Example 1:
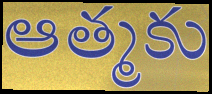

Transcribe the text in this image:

ఆత్మకు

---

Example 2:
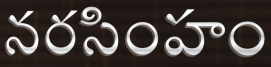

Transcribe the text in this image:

నరసింహం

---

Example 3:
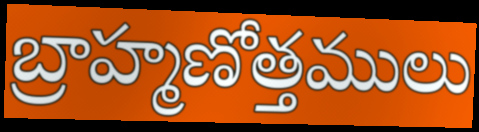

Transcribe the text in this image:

బ్రాహ్మణోత్తములు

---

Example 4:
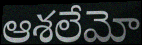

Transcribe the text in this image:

ఆశలేమో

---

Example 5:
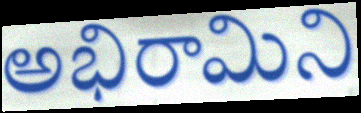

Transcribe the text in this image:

అభిరామిని